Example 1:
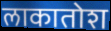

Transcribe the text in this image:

लाकातोश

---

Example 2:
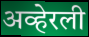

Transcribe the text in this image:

अव्हेरली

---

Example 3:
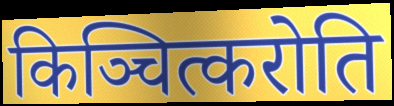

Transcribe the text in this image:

किञ्चित्करोति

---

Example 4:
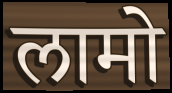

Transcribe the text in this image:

लामो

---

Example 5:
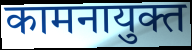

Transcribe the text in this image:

कामनायुक्त